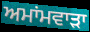
ਅਮਾਂਮਵਾੜਾ